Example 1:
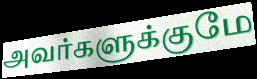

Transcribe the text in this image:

அவர்களுக்குமே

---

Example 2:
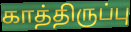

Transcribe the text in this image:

காத்திருப்பு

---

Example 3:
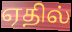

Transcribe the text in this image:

ஏதில்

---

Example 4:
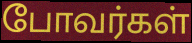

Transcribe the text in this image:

போவர்கள்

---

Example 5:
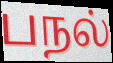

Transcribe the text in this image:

பநல்